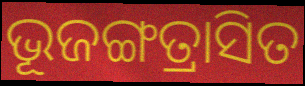
ଭୂଜଙ୍ଗତ୍ରାସିତ